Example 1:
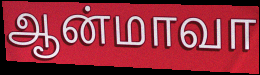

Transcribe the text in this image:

ஆன்மாவா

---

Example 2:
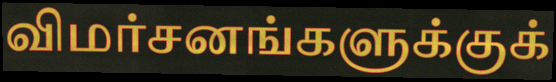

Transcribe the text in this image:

விமர்சனங்களுக்குக்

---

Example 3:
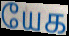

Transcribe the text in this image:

யேக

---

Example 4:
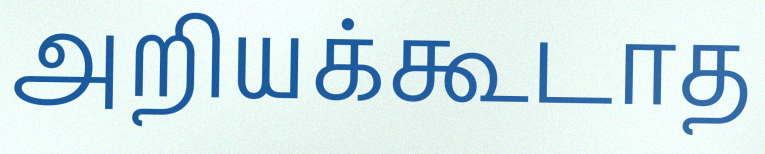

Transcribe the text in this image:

அறியக்கூடாத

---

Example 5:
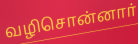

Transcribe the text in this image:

வழிசொன்னார்